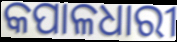
କପାଳଧାରୀ